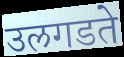
उलगडते